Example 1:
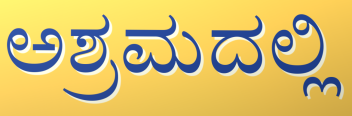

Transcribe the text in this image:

ಅಶ್ರಮದಲ್ಲಿ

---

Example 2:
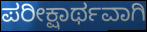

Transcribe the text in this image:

ಪರೀಕ್ಷಾರ್ಥವಾಗಿ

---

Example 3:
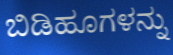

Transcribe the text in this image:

ಬಿಡಿಹೂಗಳನ್ನು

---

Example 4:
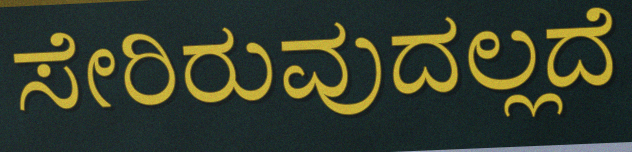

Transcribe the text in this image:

ಸೇರಿರುವುದಲ್ಲದೆ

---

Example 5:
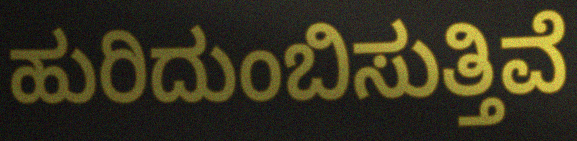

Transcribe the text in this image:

ಹುರಿದುಂಬಿಸುತ್ತಿವೆ